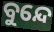
ବୁନ୍ଦେ